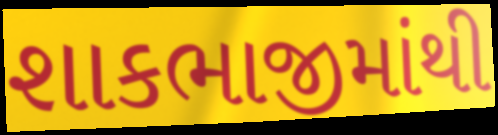
શાકભાજીમાંથી